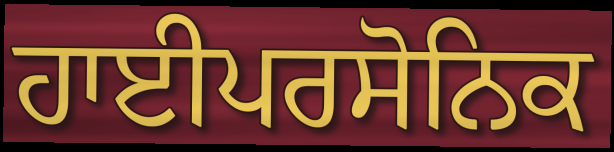
ਹਾਈਪਰਸੋਨਿਕ